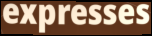
expresses